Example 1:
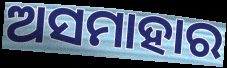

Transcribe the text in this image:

ଅସମାହାର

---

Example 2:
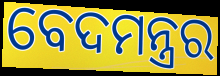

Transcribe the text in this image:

ବେଦମନ୍ତ୍ରର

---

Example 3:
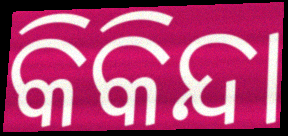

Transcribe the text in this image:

କିକିନ୍ଦା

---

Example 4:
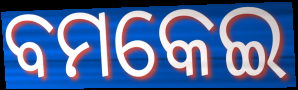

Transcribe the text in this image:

ବମକେଇ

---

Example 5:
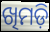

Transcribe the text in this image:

ଖିମଡ଼ି